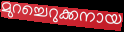
മുറച്ചെറുക്കനായ